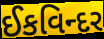
ઈકવિન્દર